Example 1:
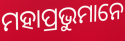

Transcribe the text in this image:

ମହାପ୍ରଭୁମାନେ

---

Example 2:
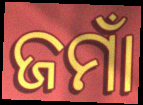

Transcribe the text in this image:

ଜମାଁ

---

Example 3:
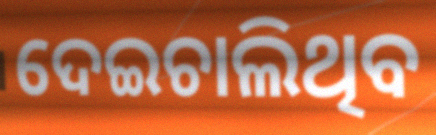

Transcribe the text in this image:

ଦେଇଚାଲିଥିବ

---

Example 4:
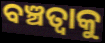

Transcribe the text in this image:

ବଞ୍ଚତ୍ବାକୁ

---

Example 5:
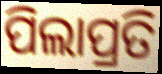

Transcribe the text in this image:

ପିଲାପ୍ରତି